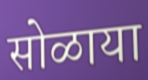
सोळाया